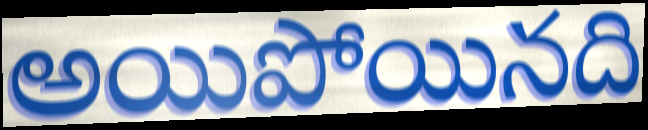
అయిపోయినది